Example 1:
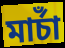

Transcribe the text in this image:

মার্চাঁ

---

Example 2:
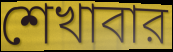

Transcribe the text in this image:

শেখাবার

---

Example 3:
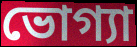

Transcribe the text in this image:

ভোগ্যা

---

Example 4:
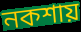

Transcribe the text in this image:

নকশায়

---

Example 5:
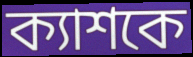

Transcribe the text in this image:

ক্যাশকে